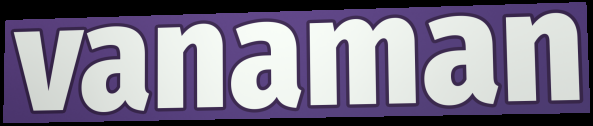
vanaman